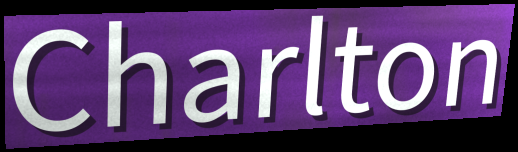
Charlton